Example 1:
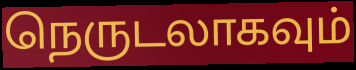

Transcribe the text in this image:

நெருடலாகவும்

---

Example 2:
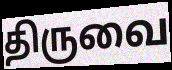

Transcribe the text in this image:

திருவை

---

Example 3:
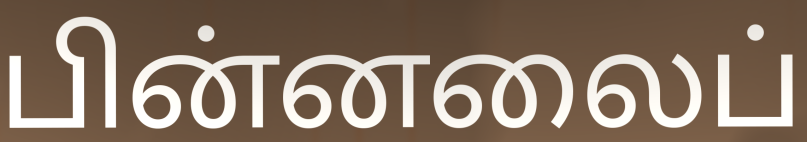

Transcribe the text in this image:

பின்னலைப்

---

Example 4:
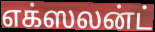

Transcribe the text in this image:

எக்ஸலன்ட்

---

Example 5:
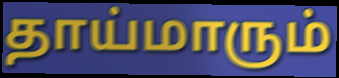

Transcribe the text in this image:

தாய்மாரும்